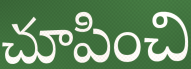
చూపించి